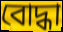
বোদ্ধা